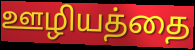
ஊழியத்தை